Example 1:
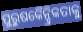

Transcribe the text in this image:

ପୁରୁଷକୈନ୍ଦ୍ରିକତାକୁ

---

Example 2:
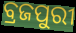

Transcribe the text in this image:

ବ୍ରଜପୁରୀ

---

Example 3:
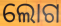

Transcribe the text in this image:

ଲୋଗ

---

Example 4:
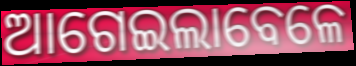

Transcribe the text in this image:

ଆଗେଇଲାବେଳେ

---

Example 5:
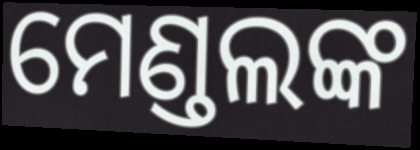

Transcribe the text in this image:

ମେଣ୍ଡଲଙ୍କ